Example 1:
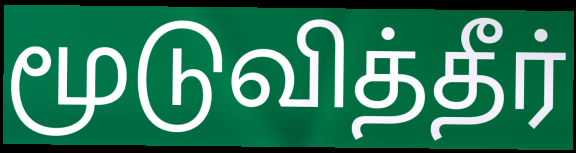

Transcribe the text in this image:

மூடுவித்தீர்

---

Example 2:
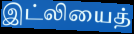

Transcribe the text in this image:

இட்லியைத்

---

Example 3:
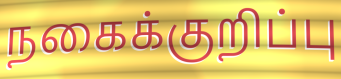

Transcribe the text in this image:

நகைக்குறிப்பு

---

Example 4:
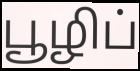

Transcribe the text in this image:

பூழிப்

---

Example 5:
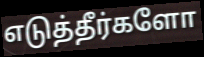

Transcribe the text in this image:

எடுத்தீர்களோ